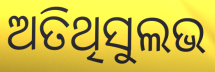
ଅତିଥିସୁଲଭ